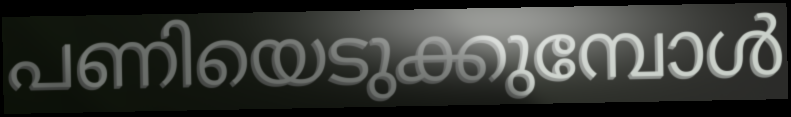
പണിയെടുക്കുമ്പോൾ